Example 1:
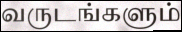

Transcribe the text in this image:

வருடங்களும்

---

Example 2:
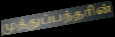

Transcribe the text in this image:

முத்துப்பந்தரின்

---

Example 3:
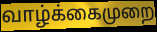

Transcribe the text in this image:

வாழ்க்கைமுறை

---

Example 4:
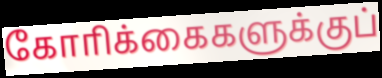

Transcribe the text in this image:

கோரிக்கைகளுக்குப்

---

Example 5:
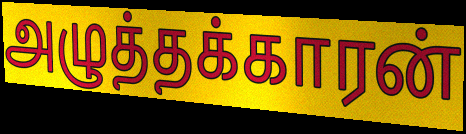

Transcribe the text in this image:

அழுத்தக்காரன்